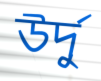
উর্দু